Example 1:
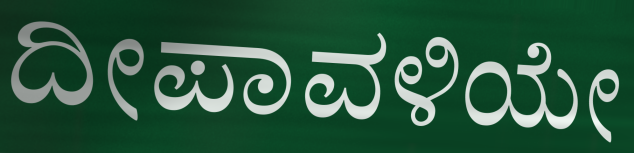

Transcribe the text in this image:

ದೀಪಾವಳಿಯೇ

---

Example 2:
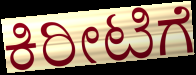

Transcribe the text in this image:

ಕಿರೀಟಿಗೆ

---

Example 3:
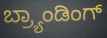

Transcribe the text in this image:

ಬ್ರ್ಯಾಂಡಿಂಗ್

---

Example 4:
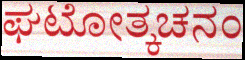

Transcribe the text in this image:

ಘಟೋತ್ಕಚನಂ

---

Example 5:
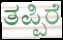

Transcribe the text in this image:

ತಪ್ಪಿರೆ